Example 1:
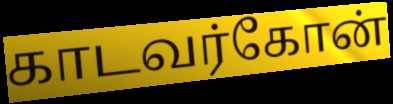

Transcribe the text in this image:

காடவர்கோன்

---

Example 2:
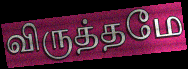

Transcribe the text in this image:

விருத்தமே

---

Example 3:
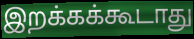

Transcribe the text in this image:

இறக்கக்கூடாது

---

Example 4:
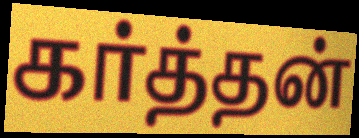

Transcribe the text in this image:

கர்த்தன்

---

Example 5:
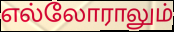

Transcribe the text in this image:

எல்லோராலும்